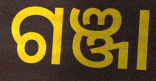
ଗଞ୍ଜା